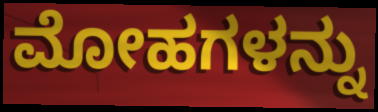
ಮೋಹಗಳನ್ನು